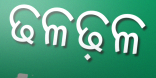
ଢଳଢ଼ଳ